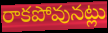
రాకపోవునట్లు